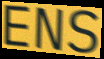
ENS